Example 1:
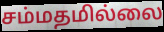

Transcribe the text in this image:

சம்மதமில்லை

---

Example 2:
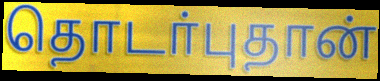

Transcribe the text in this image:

தொடர்புதான்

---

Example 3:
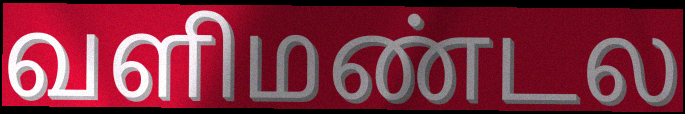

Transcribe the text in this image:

வளிமண்டல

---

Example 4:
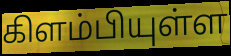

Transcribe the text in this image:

கிளம்பியுள்ள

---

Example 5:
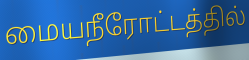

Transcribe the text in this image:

மையநீரோட்டத்தில்